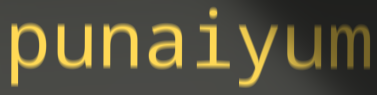
punaiyum